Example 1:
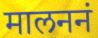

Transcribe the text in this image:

मालननं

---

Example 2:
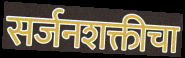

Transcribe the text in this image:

सर्जनशक्तीचा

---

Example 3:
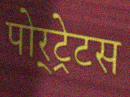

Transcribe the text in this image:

पोर्ट्रेटस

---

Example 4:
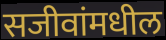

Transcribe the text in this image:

सजीवांमधील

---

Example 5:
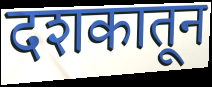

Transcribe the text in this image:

दशकातून